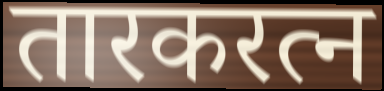
तारकरत्न